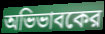
অভিভাবকের